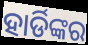
ହାର୍ଡିଙ୍କର